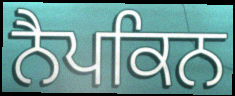
ਨੈਪਕਿਨ